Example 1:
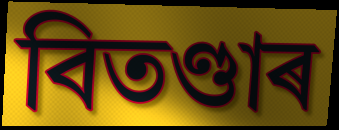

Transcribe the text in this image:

বিতণ্ডাৰ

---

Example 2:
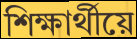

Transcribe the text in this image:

শিক্ষাৰ্থীয়ে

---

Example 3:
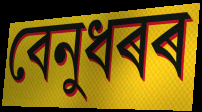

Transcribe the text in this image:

বেনুধৰৰ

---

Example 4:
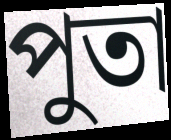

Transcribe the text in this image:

পুতা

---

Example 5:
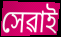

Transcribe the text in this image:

সেৱাই